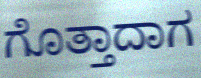
ಗೊತ್ತಾದಾಗ